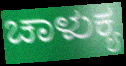
ಚಾಳುಕ್ಯ